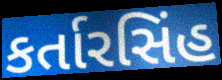
કર્તારસિંહ